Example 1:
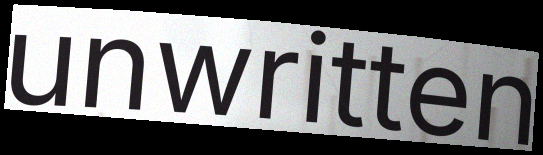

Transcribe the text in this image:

unwritten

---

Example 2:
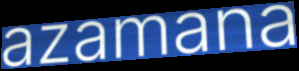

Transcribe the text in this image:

azamana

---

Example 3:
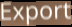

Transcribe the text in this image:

Export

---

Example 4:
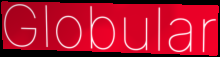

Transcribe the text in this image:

Globular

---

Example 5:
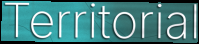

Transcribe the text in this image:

Territorial